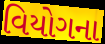
વિયોગના